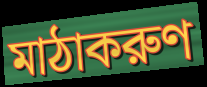
মাঠাকরুণ